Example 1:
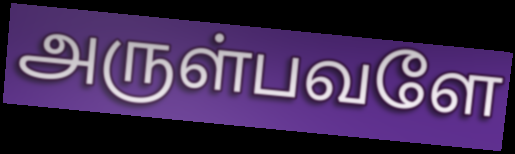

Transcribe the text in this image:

அருள்பவளே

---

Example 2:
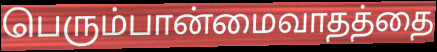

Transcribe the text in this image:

பெரும்பான்மைவாதத்தை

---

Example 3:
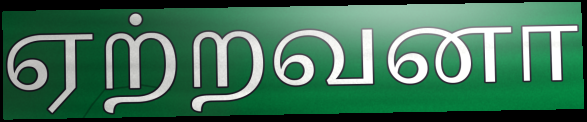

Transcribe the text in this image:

ஏற்றவனா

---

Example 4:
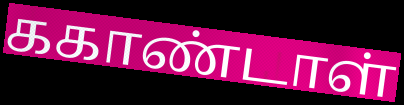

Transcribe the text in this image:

ககாண்டாள்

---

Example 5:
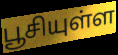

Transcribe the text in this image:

பூசியுள்ள